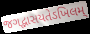
જગદ્ભાસયતેઽખિલમ્